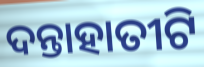
ଦନ୍ତାହାତୀଟି